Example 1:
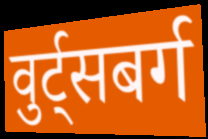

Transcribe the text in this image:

वुर्ट्सबर्ग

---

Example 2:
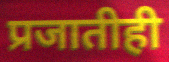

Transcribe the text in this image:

प्रजातीही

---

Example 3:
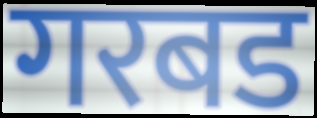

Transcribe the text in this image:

गरबड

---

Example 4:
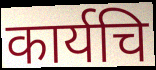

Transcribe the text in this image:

कार्यचि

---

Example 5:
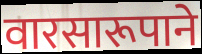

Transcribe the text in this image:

वारसारूपाने